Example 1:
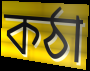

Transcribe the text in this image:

কঠা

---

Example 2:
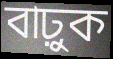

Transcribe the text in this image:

বাঢ়ুক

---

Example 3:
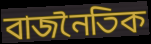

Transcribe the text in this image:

বাজনৈতিক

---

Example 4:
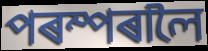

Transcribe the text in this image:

পৰম্পৰালৈ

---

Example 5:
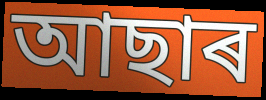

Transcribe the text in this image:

আছাৰ